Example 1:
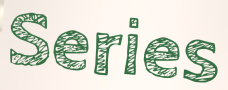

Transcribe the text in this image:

Series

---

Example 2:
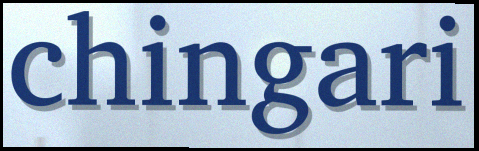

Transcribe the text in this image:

chingari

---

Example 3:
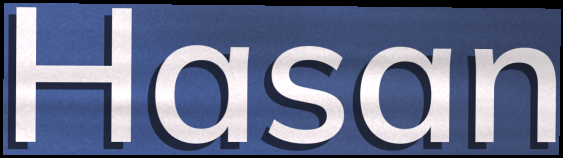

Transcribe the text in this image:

Hasan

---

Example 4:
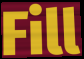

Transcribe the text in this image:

Fill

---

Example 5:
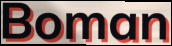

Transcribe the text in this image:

Boman